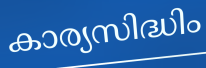
കാര്യസിദ്ധിം